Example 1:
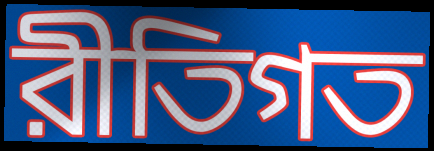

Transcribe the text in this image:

রীতিগত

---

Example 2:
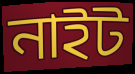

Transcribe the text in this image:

নাইট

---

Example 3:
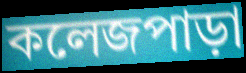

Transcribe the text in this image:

কলেজপাড়া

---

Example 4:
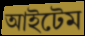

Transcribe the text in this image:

আইটেম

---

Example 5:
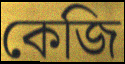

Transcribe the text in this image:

কেজি